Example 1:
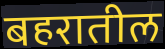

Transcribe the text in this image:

बहरातील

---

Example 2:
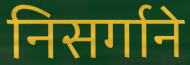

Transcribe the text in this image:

निसर्गाने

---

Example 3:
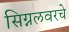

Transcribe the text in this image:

सिग्नलवरचे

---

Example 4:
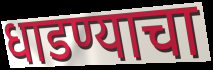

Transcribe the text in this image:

धाडण्याचा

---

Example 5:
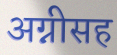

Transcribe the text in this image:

अग्नीसह